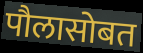
पौलासोबत